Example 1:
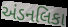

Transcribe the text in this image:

અંડનલિકા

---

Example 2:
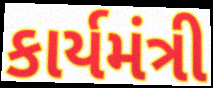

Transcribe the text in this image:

કાર્યમંત્રી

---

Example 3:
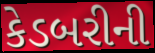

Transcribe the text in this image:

કેડબરીની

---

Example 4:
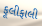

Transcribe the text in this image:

ફૂલીફાલી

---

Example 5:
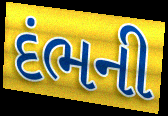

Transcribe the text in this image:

દંભની